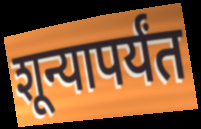
शून्यापर्यंत